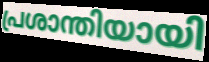
പ്രശാന്തിയായി